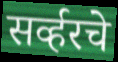
सर्व्हरचे